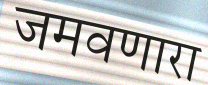
जमवणारा